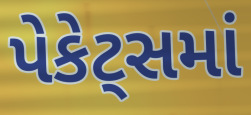
પેકેટ્સમાં